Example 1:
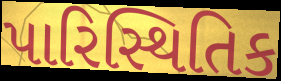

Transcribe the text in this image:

પારિસ્થિતિક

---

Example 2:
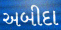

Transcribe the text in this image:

અબીદા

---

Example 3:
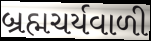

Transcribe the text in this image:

બ્રહ્મચર્યવાળી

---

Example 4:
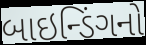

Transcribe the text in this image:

બાઇન્ડિંગનો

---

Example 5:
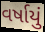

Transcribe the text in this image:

વર્ષાયું